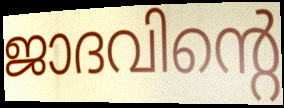
ജാദവിന്റെ